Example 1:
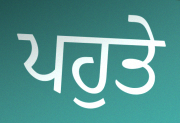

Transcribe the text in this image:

ਪਹੁਤੇ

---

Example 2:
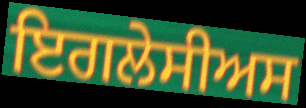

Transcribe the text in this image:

ਇਗਲੇਸੀਅਸ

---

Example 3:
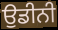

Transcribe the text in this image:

ਉਡੀਨੀ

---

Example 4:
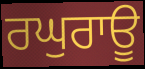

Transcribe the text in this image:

ਰਘੁਰਾਊ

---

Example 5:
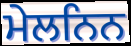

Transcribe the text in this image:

ਮੇਲਨਿਨ